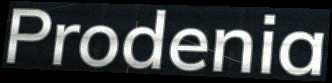
Prodenia